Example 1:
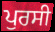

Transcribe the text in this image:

ਪੁਰਸੀ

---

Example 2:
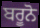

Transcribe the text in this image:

ਬਰੂਨੋ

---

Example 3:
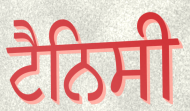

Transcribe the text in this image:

ਟੈਨਿਸੀ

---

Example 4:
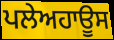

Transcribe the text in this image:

ਪਲੇਅਹਾਊਸ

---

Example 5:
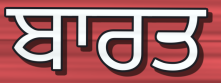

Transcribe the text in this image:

ਬਾਰਤ